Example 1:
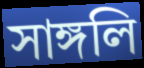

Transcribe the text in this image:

সাঙ্গলি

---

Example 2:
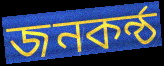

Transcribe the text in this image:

জনকন্ঠ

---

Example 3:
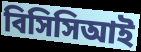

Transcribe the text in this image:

বিসিসিআই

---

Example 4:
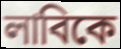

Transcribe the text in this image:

লাবিকে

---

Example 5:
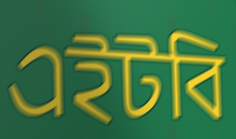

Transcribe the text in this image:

এইটবি